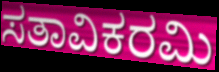
ಸತಾವಿಕರಮಿ